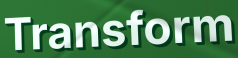
Transform